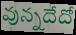
వున్నదేదో